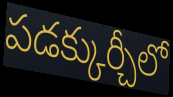
పడక్కుర్చీలో